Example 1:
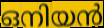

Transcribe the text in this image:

ഒനിയൻ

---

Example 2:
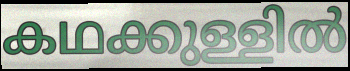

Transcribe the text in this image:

കഥക്കുള്ളിൽ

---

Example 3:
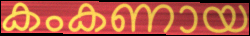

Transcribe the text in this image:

കംകണായ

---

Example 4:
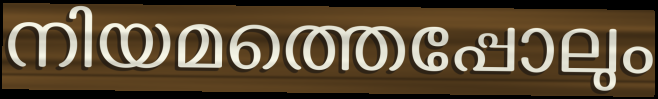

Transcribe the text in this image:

നിയമത്തെപ്പോലും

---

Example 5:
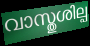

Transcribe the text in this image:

വാസ്തുശില്പ